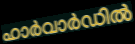
ഹാർവാർഡിൽ